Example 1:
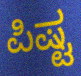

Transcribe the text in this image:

ಪಿಷ್ಟ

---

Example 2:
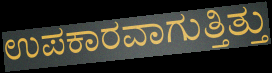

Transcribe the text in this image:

ಉಪಕಾರವಾಗುತ್ತಿತ್ತು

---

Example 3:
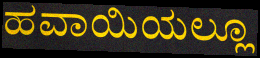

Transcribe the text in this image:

ಹವಾಯಿಯಲ್ಲೂ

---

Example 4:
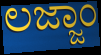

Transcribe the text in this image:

ಲಜ್ಜಾಂ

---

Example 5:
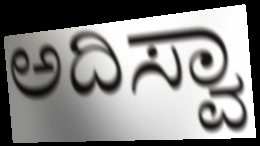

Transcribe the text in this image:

ಅದಿಸ್ವಾ